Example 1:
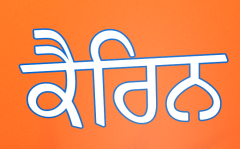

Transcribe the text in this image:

ਕੈਰਿਨ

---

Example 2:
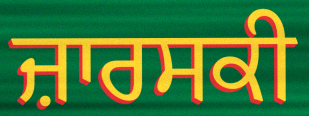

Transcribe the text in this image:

ਜ਼ਾਰਸਕੀ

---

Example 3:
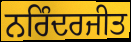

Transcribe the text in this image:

ਨਰਿੰਦਰਜੀਤ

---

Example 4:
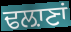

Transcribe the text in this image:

ਢਲ਼ਾਣਾਂ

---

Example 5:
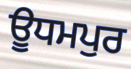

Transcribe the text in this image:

ਊਧਮਪੁਰ